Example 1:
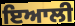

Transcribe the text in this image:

ਇਆਲੀ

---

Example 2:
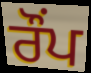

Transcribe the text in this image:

ਰੌਂਪ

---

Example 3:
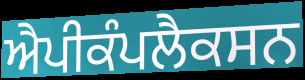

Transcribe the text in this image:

ਐਪੀਕੰਪਲੈਕਸਨ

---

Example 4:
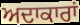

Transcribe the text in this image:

ਅਦਾਕਾਰਾਂ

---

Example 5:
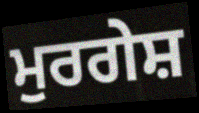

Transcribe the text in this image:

ਮੁਰਗੇਸ਼